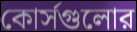
কোর্সগুলোর